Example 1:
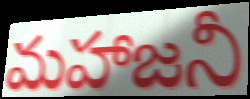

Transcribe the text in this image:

మహాజనీ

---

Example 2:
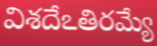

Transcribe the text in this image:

విశదేఽతిరమ్యే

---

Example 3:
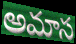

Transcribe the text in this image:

అమాస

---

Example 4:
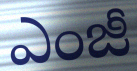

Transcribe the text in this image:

ఎంజీ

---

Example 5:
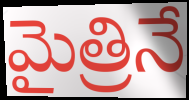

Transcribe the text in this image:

మైత్రినే